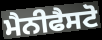
ਮੈਨੀਫੈਸਟੋ